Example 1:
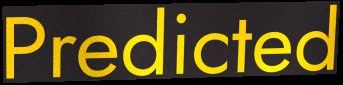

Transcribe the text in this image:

Predicted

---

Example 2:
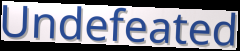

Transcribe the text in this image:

Undefeated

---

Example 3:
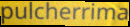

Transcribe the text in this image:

pulcherrima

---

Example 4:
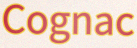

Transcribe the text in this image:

Cognac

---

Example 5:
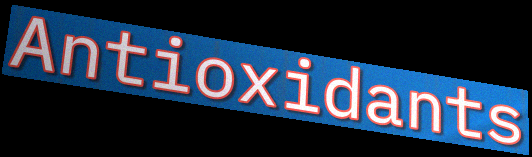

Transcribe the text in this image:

Antioxidants